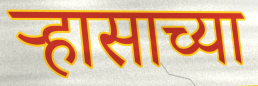
ऱ्हासाच्या